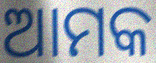
ଆମକ